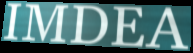
IMDEA